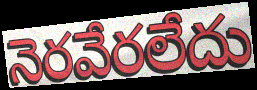
నెరవేరలేదు